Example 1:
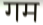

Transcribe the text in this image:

गम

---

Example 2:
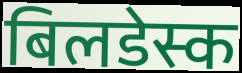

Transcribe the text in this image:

बिलडेस्क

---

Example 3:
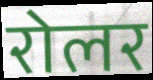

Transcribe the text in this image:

रोलर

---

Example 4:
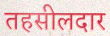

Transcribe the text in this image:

तहसीलदार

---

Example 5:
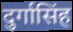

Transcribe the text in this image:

दुर्गासिंह